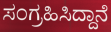
ಸಂಗ್ರಹಿಸಿದ್ದಾನೆ